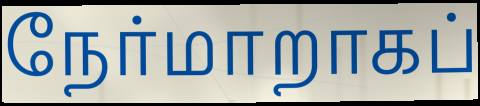
நேர்மாறாகப்